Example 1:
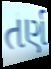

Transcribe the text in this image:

તર્ણ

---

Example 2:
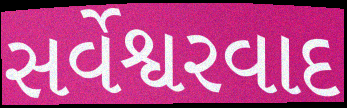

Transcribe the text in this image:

સર્વેશ્વરવાદ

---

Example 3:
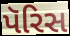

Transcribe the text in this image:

પૅરિસ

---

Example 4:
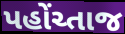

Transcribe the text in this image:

પહોંચ્તાજ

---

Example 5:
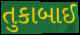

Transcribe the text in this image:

તુકાબાઈ